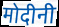
मोदीनी